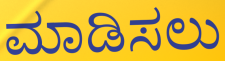
ಮಾಡಿಸಲು